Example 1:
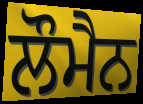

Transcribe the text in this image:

ਲੌਮੈਨ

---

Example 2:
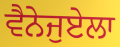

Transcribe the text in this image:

ਵੈਨੇਜੁਏਲਾ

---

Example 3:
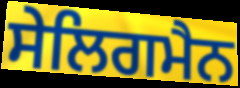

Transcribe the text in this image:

ਸੇਲਿਗਮੈਨ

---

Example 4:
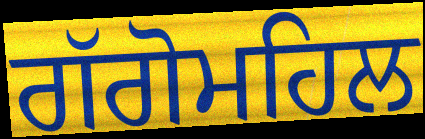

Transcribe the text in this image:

ਗੱਗੋਮਹਿਲ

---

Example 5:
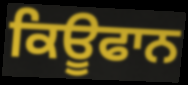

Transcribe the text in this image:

ਕਿਊਫਾਨ